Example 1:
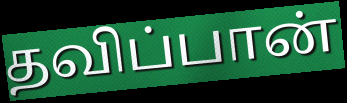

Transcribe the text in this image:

தவிப்பான்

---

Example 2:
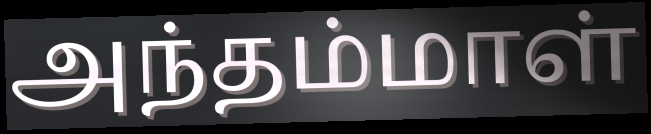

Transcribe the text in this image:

அந்தம்மாள்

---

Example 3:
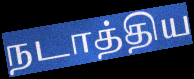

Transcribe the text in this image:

நடாத்திய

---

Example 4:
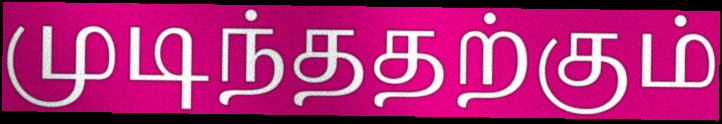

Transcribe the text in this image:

முடிந்ததற்கும்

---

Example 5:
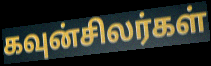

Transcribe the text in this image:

கவுன்சிலர்கள்